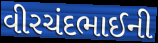
વીરચંદભાઈની